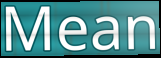
Mean